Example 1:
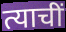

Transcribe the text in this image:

त्याचीं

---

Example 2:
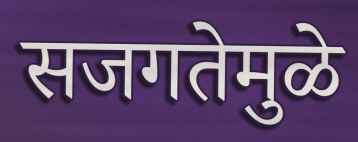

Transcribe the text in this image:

सजगतेमुळे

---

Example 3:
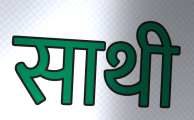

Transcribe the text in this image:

साथी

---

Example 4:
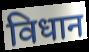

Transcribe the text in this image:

विधान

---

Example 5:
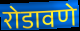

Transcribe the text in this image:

रोडावणे